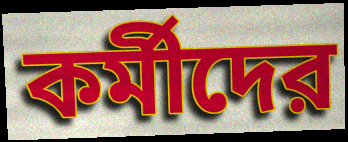
কর্মীদের